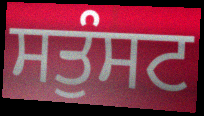
ਸਤੁੰਸਟ